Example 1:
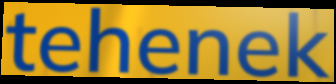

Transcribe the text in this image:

tehenek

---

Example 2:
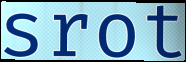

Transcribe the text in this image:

srot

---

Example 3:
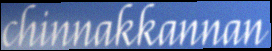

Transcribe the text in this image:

chinnakkannan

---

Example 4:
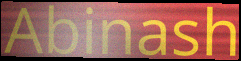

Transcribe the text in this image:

Abinash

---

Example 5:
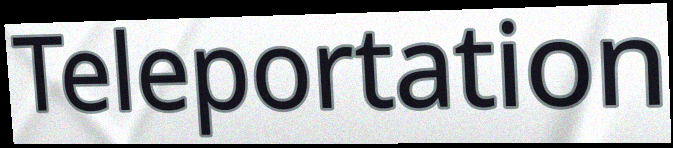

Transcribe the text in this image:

Teleportation